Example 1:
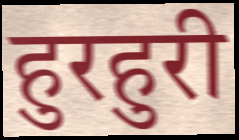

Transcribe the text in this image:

हुरहुरी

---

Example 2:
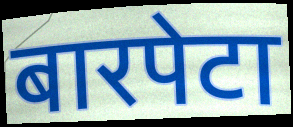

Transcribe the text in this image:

बारपेटा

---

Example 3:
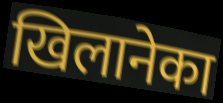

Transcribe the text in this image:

खिलानेका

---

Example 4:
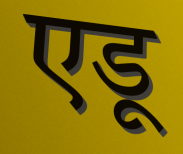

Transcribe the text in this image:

एडू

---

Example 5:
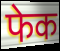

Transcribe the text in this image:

फेक